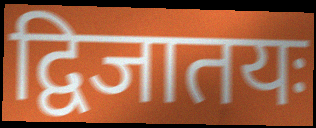
द्विजातयः